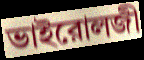
ভাইরোলজী